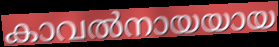
കാവൽനായയായ